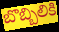
బొబ్బిలికి